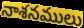
నాశనములు